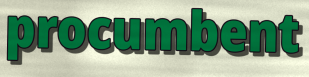
procumbent